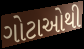
ગોટાઓથી